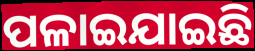
ପଳାଇଯାଇଛି